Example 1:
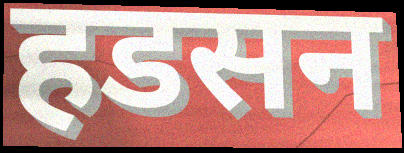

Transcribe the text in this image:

हडसन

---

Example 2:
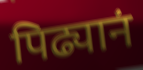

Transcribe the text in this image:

पिढ्यानं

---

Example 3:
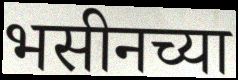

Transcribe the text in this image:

भसीनच्या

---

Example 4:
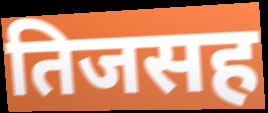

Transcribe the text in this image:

तिजसह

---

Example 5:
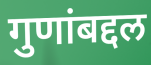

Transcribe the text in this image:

गुणांबद्दल